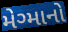
મેગ્માનો